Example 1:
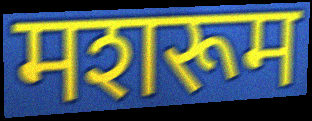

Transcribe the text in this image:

मशरूम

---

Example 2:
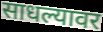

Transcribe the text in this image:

साधल्यावर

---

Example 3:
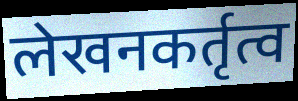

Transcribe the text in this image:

लेखनकर्तृत्व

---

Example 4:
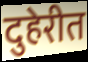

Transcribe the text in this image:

दुहेरीत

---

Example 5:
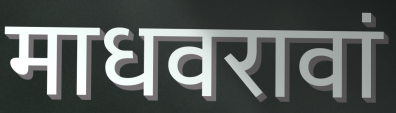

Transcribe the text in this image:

माधवरावां